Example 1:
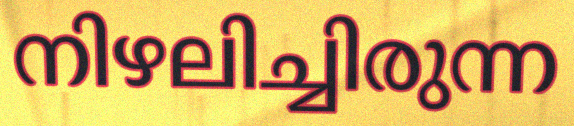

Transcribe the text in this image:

നിഴലിച്ചിരുന്ന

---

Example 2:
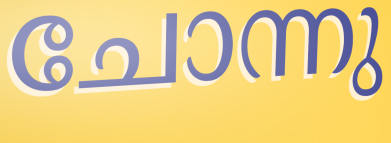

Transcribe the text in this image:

ചോന്നു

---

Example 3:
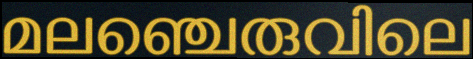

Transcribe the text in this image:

മലഞ്ചെരുവിലെ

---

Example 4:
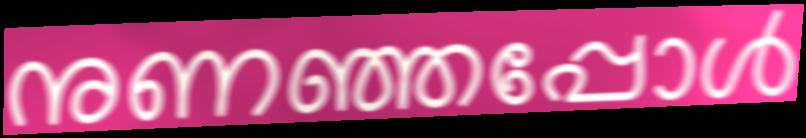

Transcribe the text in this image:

നുണഞ്ഞപ്പോൾ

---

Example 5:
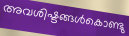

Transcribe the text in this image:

അവശിഷ്ടങ്ങൾകൊണ്ടു